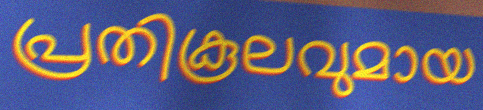
പ്രതികൂലവുമായ